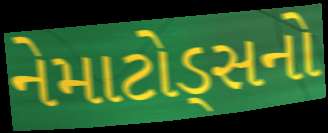
નેમાટોડ્સનો